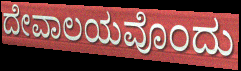
ದೇವಾಲಯವೊಂದು